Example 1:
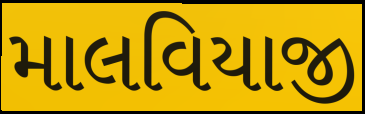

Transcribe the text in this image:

માલવિયાજી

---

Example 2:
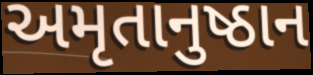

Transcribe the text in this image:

અમૃતાનુષ્ઠાન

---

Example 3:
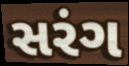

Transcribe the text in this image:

સરંગ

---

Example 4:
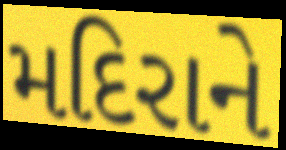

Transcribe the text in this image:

મદિરાને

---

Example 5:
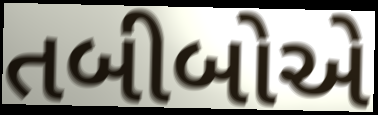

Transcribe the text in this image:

તબીબોએ